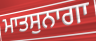
ਮਾਤਸੁਨਾਗਾ